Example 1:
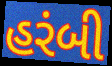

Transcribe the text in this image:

હરંબી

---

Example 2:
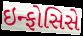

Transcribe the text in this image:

ઇન્ફોસિસે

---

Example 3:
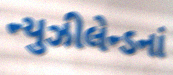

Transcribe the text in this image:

ન્યુઝીલેન્ડનાં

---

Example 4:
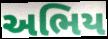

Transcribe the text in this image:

અભિય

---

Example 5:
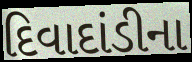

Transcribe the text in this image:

દિવાદાંડીના